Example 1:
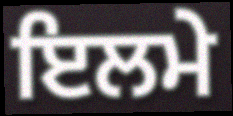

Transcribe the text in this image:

ਇਲਮੇ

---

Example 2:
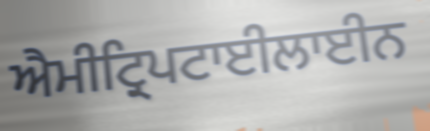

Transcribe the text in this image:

ਐਮੀਟ੍ਰਿਪਟਾਈਲਾਈਨ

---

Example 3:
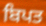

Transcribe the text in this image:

ਬਿਪਤ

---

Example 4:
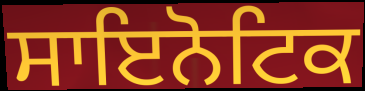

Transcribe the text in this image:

ਸਾਇਨੋਟਿਕ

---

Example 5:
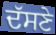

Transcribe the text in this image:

ਦੱਸਣੇ